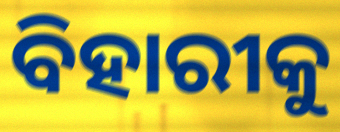
ବିହାରୀକୁ